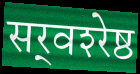
सर्वश्रेष्ठ